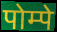
पोम्पे